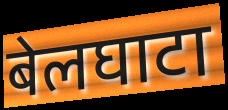
बेलघाटा